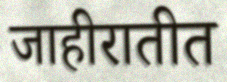
जाहीरातीत